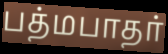
பத்மபாதர்